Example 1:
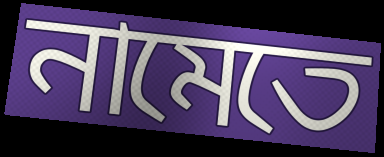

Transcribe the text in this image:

নামেতে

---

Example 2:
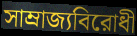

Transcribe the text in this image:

সাম্রাজ্যবিরোধী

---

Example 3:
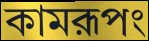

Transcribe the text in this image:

কামরূপং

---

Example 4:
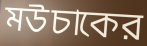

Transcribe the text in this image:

মউচাকের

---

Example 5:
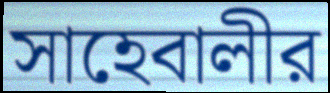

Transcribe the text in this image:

সাহেবালীর